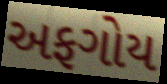
અફગોય